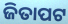
ଜିତାପଟ